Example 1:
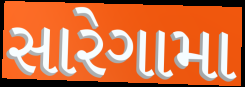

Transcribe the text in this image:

સારેગામા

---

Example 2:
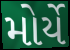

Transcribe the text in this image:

મોર્યે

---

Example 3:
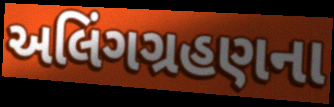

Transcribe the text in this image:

અલિંગગ્રહણના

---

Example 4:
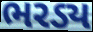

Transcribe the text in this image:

ભરડ્ય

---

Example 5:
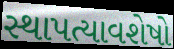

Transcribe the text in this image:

સ્થાપત્યાવશેષો